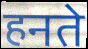
हनते